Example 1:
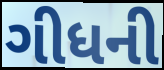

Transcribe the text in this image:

ગીધની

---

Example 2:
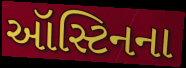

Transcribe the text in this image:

ઑસ્ટિનના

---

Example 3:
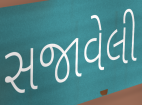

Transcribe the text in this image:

સજાવેલી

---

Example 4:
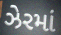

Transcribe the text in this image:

ઝેરમાં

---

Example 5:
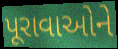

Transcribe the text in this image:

પૂરાવાઓને